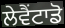
ਲੇਵੈਂਟਾਡੋ